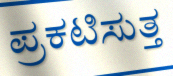
ಪ್ರಕಟಿಸುತ್ತ